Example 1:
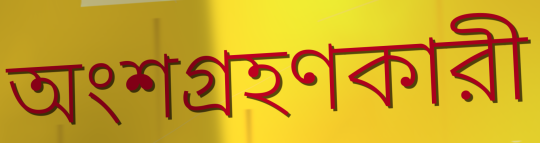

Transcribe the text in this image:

অংশগ্রহণকারী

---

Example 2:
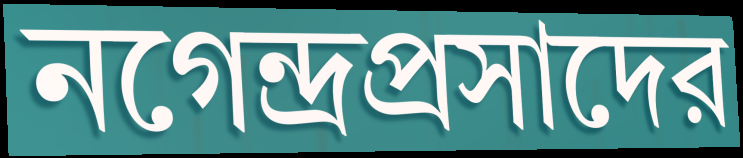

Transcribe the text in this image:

নগেন্দ্রপ্রসাদের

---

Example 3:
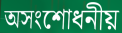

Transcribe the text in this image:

অসংশোধনীয়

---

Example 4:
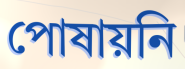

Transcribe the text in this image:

পোষায়নি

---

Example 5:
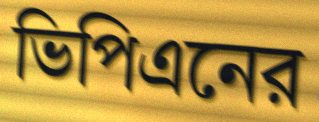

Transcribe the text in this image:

ভিপিএনের